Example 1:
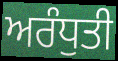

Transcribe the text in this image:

ਅਰੰਧੁਤੀ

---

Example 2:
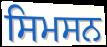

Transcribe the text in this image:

ਸਿਮਸਨ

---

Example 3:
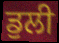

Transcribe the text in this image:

ਡੁਲੀ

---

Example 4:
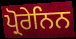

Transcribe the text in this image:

ਪ੍ਰੋਰੇਨਿਨ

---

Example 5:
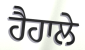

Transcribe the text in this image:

ਹੈਹਾਲੇ